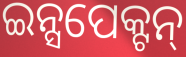
ଇନ୍ସପେକ୍ଟନ୍